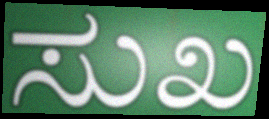
ಸುಖ